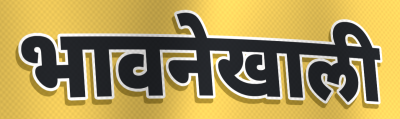
भावनेखाली